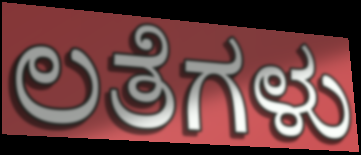
ಲತೆಗಳು